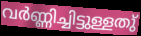
വർണ്ണിച്ചിട്ടുള്ളതു്